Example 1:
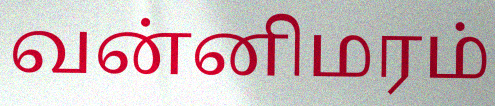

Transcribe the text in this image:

வன்னிமரம்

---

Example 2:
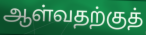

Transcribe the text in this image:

ஆள்வதற்குத்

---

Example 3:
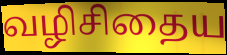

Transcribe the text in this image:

வழிசிதைய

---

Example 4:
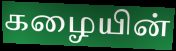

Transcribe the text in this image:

கழையின்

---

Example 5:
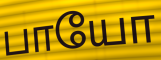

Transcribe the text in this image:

பாயோ